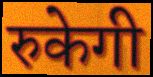
रुकेगी